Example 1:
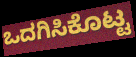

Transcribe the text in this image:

ಒದಗಿಸಿಕೊಟ್ಟ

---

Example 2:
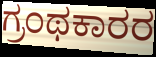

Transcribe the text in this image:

ಗ್ರಂಥಕಾರರ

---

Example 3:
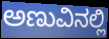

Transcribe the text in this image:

ಅಣುವಿನಲ್ಲಿ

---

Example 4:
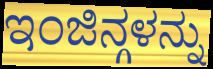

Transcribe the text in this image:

ಇಂಜಿನ್ಗಳನ್ನು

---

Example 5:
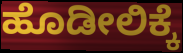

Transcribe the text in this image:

ಹೊಡೀಲಿಕ್ಕೆ